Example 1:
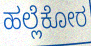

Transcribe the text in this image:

ಹಲ್ಲೆಕೋರ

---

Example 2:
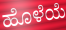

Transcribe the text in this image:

ಹೊಳೆಯೆ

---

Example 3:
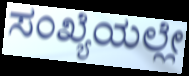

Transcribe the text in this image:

ಸಂಖ್ಯೆಯಲ್ಲೇ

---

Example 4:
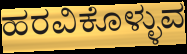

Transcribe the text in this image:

ಹರವಿಕೊಳ್ಳುವ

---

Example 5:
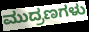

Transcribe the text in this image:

ಮುದ್ರಣಗಳು